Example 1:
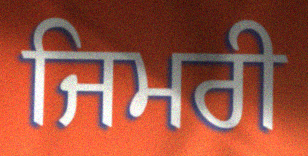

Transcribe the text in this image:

ਜਿਮਰੀ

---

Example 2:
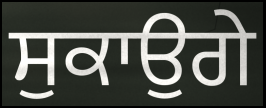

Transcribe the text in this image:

ਸੁਕਾਉਗੇ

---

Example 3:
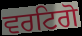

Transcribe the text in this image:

ਵਰਟਿਗੋ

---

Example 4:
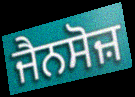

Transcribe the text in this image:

ਜੈਨਸੋਜ਼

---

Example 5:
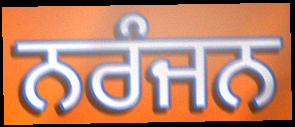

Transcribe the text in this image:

ਨਰੰਜਨ